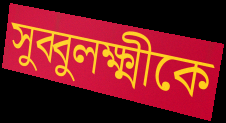
সুব্বুলক্ষ্মীকে